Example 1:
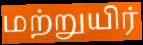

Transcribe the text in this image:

மற்றுயிர்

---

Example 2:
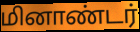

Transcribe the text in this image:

மினாண்டர்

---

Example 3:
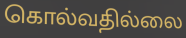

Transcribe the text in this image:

கொல்வதில்லை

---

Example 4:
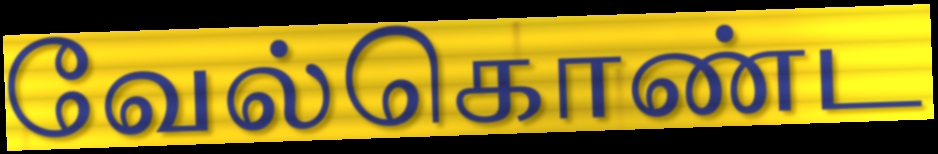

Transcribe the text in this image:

வேல்கொண்ட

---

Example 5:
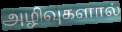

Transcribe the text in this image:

அழிவுகளால்